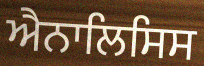
ਐਨਾਲਿਸਿਸ